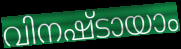
വിനഷ്ടായാം